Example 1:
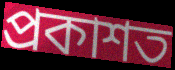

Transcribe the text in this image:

প্ৰকাশত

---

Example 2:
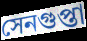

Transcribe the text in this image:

সেনগুপ্তা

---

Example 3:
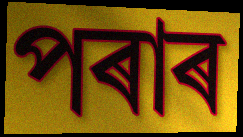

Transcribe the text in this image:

পৰাৰ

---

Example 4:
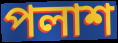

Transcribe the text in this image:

পলাশ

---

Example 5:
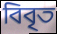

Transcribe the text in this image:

বিবৃত